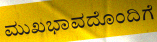
ಮುಖಭಾವದೊಂದಿಗೆ